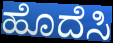
ಹೊದೆಸಿ